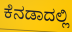
ಕೆನಡಾದಲ್ಲಿ